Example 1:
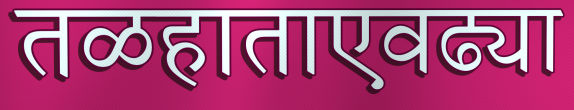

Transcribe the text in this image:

तळहाताएवढ्या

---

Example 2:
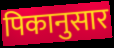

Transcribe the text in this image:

पिकानुसार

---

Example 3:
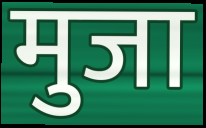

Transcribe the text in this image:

मुजा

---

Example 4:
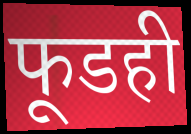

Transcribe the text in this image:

फूडही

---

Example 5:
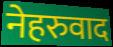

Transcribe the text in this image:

नेहरुवाद